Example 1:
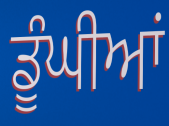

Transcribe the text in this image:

ਡੂੰਘੀਆਂ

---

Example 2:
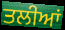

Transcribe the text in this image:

ਤਲੀਆਂ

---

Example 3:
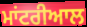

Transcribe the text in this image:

ਮਾਂਟਰੀਆਲ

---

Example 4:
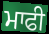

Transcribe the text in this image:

ਮਾਫੀ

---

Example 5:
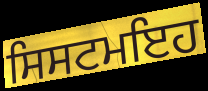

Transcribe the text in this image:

ਸਿਸਟਮਇਹ